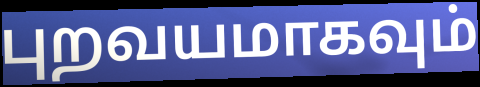
புறவயமாகவும்